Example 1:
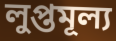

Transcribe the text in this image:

লুপ্তমূল্য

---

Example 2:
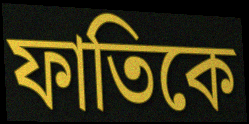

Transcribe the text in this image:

ফাতিকে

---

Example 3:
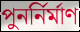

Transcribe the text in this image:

পুনর্নির্মাণ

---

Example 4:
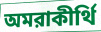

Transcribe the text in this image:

অমরাকীর্থি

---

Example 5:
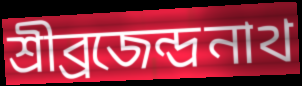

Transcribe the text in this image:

শ্রীব্রজেন্দ্রনাথ